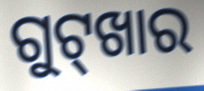
ଗୁଟ୍‌ଖାର